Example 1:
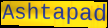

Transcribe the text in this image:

Ashtapad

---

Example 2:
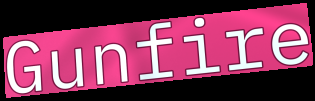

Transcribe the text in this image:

Gunfire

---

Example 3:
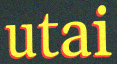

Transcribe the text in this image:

utai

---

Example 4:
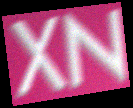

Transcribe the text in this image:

XN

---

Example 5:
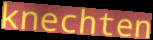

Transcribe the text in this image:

knechten